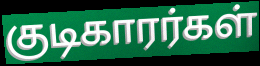
குடிகாரர்கள்